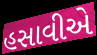
હસાવીએ